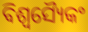
ବିଶ୍ୱସ୍ୟୈକଂ